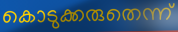
കൊടുക്കരുതെന്ന്